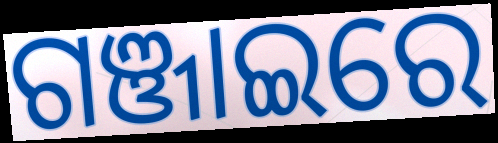
ଗଞ୍ଜାଇରେ